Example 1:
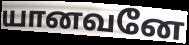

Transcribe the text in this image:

யானவனே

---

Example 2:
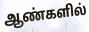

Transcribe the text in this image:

ஆண்களில்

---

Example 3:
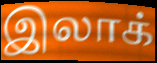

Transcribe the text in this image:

இலாக்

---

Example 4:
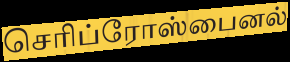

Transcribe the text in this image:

செரிப்ரோஸ்பைனல்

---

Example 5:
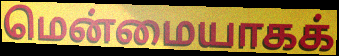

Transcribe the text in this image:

மென்மையாகக்